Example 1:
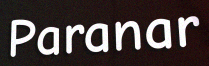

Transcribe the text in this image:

Paranar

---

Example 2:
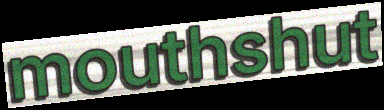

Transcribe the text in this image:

mouthshut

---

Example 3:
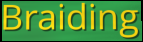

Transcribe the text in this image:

Braiding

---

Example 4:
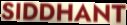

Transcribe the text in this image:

SIDDHANT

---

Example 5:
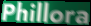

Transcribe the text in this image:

Phillora